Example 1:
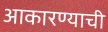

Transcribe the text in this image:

आकारण्याची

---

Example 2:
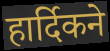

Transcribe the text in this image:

हार्दिकने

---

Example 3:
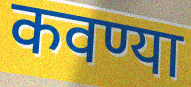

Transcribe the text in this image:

कवण्या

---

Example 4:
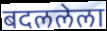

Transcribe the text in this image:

बदललेला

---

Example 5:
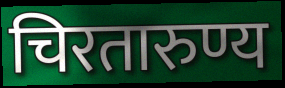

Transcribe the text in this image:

चिरतारुण्य